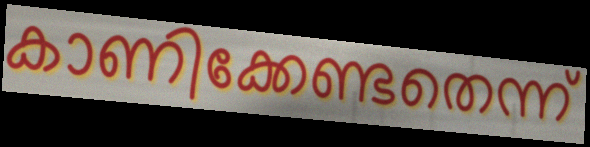
കാണിക്കേണ്ടതെന്ന്